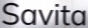
Savita